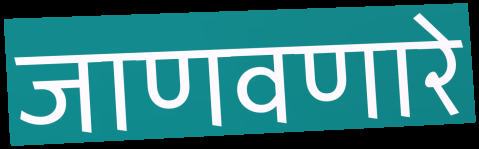
जाणवणारे